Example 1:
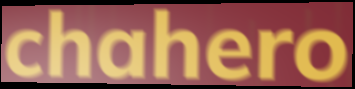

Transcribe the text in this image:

chahero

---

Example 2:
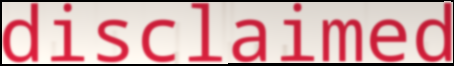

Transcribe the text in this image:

disclaimed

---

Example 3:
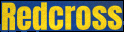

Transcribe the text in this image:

Redcross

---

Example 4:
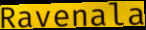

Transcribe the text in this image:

Ravenala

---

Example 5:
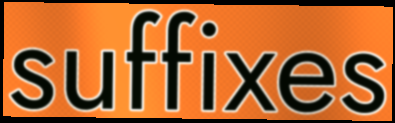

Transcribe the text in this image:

suffixes